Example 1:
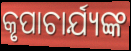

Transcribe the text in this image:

କୃପାଚାର୍ଯ୍ୟଙ୍କ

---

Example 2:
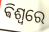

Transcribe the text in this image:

ଵିଶ୍ୱରେ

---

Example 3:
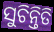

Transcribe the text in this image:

ସୁଚିନ୍ତିତି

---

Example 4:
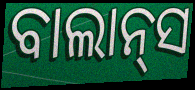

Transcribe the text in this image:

ବାଲାନ୍‌ସ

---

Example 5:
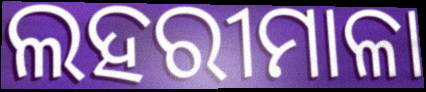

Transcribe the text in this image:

ଲହରୀମାଳା